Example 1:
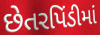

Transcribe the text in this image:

છેતરપિંડીમાં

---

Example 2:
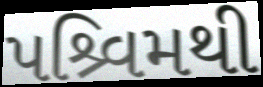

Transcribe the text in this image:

પશ્ર્વિમથી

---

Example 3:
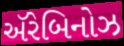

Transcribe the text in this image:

ઍરેબિનોઝ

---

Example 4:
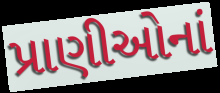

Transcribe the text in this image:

પ્રાણીઓનાં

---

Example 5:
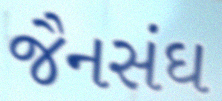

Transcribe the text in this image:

જૈનસંઘ